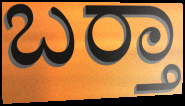
ಬರ‍್ತಾ